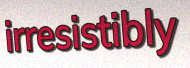
irresistibly